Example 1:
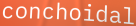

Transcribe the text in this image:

conchoidal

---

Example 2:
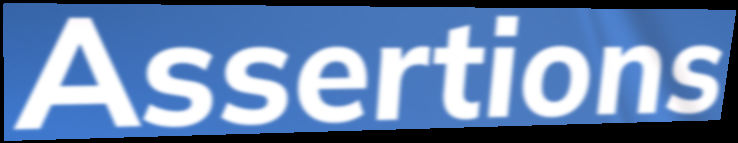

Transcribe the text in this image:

Assertions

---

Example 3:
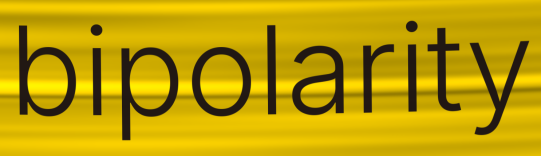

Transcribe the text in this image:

bipolarity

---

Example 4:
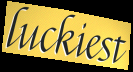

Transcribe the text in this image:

luckiest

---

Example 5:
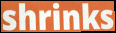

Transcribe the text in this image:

shrinks